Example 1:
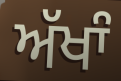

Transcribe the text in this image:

ਅੱਖਾੰ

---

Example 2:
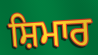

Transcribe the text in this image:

ਸ਼ਿਮਾਰ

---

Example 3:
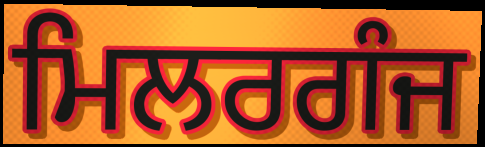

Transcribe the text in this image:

ਮਿਲਰਗੰਜ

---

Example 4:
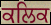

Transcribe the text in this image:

ਕਲਿਕ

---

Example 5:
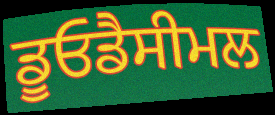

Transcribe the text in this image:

ਡੂਓਡੈਸੀਮਲ